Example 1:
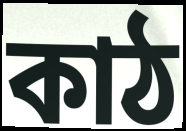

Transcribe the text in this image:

কাঠ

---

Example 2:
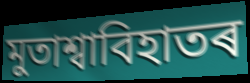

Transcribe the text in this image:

মুতাশ্বাবিহাতৰ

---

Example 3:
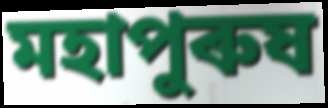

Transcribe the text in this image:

মহাপুৰুষ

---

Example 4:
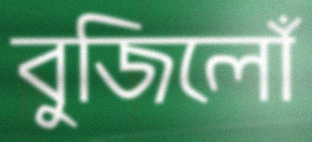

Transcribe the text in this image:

বুজিলোঁ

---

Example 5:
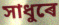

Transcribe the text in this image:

সাধুৰে